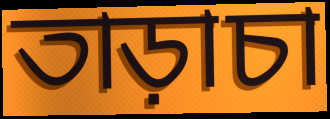
তাড়াচা